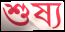
শুষ্য